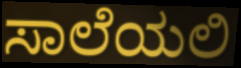
ಸಾಲೆಯಲಿ